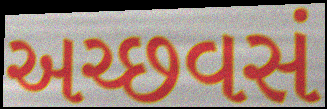
અચ્છવસં